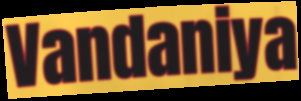
Vandaniya